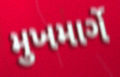
મુખમાર્ગે